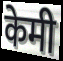
केमी